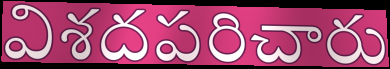
విశదపరిచారు